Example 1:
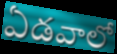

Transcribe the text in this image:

ఏడవాలో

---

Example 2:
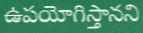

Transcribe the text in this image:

ఉపయోగిస్తానని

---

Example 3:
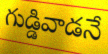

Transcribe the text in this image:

గుడ్డివాడనే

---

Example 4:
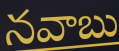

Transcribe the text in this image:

నవాబు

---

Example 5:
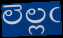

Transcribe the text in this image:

లెల్లఁ